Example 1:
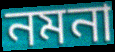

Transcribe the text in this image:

নমনা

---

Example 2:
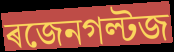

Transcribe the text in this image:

ৰজেনগল্টজ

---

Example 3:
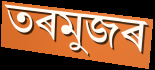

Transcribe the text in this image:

তৰমুজৰ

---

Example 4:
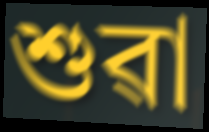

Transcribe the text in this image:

শুৱা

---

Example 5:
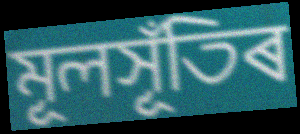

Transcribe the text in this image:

মূলসূঁতিৰ